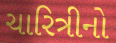
ચારિત્રીનો